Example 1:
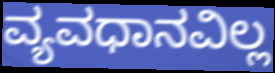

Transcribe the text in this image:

ವ್ಯವಧಾನವಿಲ್ಲ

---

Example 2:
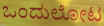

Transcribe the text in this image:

ಒಂದುಲೋಟ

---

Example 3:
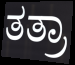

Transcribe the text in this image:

ತತ್ರಾ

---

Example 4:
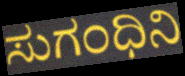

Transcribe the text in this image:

ಸುಗಂಧಿನಿ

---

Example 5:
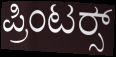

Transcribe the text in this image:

ಪ್ರಿಂಟರ‍್ಸ್